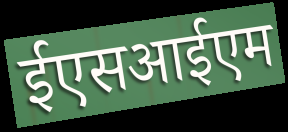
ईएसआईएम